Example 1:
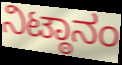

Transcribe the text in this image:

ನಿಟ್ಠಾನಂ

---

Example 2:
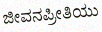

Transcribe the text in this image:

ಜೀವನಪ್ರೀತಿಯು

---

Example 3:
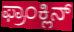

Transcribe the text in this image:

ಫ್ರಾಂಕ್ಲಿನ್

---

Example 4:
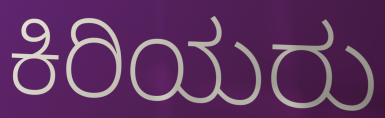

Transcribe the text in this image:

ಕಿರಿಯರು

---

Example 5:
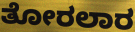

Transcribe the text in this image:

ತೋರಲಾರ